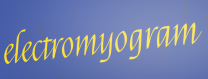
electromyogram